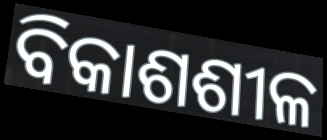
ବିକାଶଶୀଳ